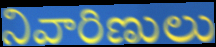
నివారిణులు